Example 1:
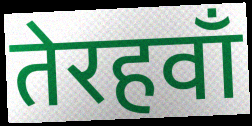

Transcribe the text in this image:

तेरहवाँ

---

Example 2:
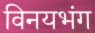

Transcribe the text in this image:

विनयभंग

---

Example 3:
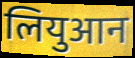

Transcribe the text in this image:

लियुआन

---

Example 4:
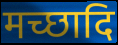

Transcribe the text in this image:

मच्छादि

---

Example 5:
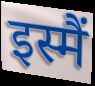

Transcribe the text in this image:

इस्मैं